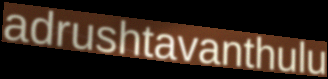
adrushtavanthulu